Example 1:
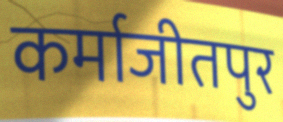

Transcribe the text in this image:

कर्माजीतपुर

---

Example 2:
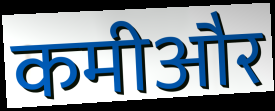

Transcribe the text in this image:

कमीऔर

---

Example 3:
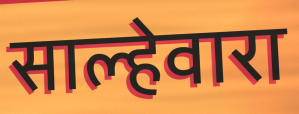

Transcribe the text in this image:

साल्हेवारा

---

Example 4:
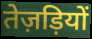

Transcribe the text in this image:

तेज़ड़ियों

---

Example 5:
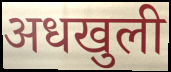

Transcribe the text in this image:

अधखुली